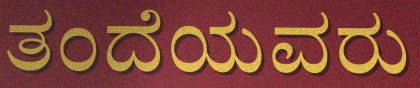
ತಂದೆಯವರು